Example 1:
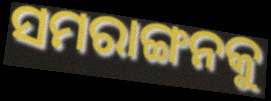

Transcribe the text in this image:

ସମରାଙ୍ଗନକୁ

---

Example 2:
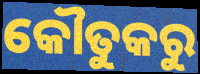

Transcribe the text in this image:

କୌତୁକରୁ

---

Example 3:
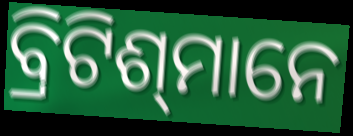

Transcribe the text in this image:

ବ୍ରିଟିଶ୍‍ମାନେ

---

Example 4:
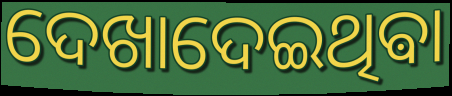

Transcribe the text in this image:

ଦେଖାଦେଇଥିଵା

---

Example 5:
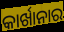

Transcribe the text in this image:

କାର୍ଖାନାର